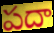
పదా